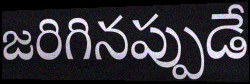
జరిగినప్పుడే